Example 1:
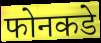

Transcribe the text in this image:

फोनकडे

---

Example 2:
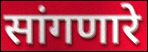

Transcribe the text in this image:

सांगणारे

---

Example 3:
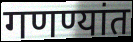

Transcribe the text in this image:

गणण्यांत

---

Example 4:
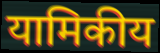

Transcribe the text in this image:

यामिकीय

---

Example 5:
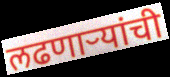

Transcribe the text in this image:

लढणाऱ्यांची